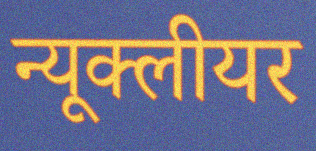
न्यूक्लीयर